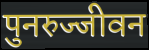
पुनरुज्‍जीवन